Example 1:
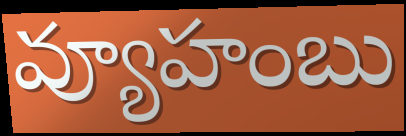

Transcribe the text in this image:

వ్యూహంబు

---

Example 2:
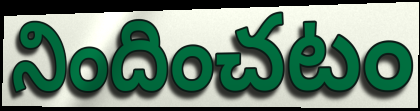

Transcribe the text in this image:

నిందించటం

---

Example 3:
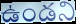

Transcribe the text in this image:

ఉండని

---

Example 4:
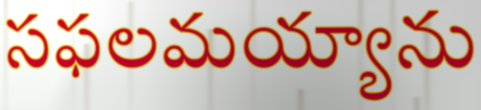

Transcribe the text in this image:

సఫలమయ్యాను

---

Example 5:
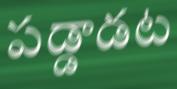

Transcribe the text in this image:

పడ్డాడట